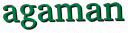
agaman